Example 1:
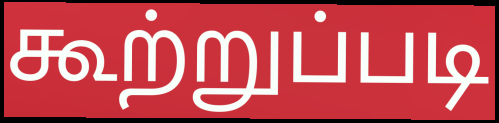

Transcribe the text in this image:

கூற்றுப்படி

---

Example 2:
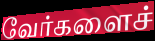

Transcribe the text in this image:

வேர்களைச்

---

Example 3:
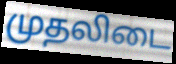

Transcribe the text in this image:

முதலிடை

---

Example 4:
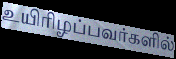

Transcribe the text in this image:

உயிரிழப்பவர்களில்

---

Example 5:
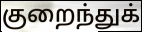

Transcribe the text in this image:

குறைந்துக்